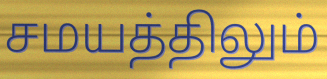
சமயத்திலும்